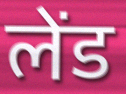
लेंड